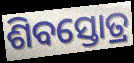
ଶିବସ୍ତୋତ୍ର